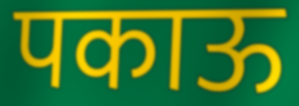
पकाऊ